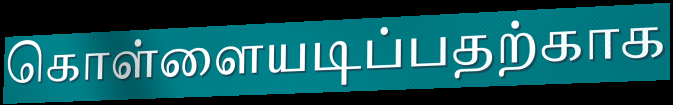
கொள்ளையடிப்பதற்காக